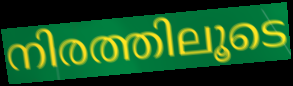
നിരത്തിലൂടെ